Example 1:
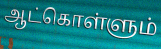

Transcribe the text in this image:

ஆட்கொள்ளும்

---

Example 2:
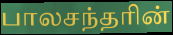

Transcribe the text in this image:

பாலசந்தரின்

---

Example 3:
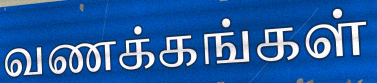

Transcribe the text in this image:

வணக்கங்கள்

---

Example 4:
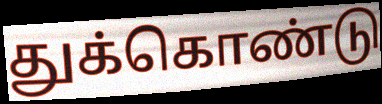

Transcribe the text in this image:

துக்கொண்டு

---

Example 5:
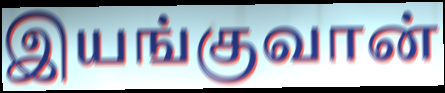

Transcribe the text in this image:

இயங்குவான்